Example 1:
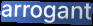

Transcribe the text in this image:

arrogant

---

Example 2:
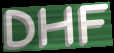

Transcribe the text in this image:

DHF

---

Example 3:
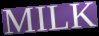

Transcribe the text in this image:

MILK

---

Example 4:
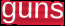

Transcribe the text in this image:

guns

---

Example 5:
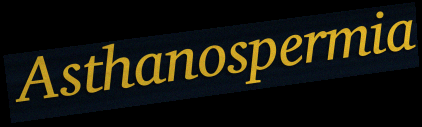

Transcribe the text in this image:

Asthanospermia